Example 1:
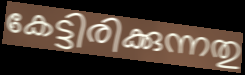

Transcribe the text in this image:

കേട്ടിരിക്കുന്നതു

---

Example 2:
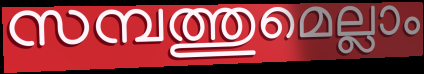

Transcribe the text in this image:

സമ്പത്തുമെല്ലാം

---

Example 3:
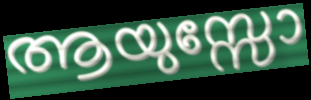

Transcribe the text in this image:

ആയുസ്സോ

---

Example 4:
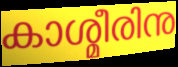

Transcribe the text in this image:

കാശ്മീരിനു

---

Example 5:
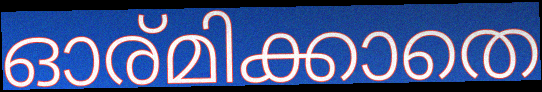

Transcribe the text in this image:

ഓര്മിക്കാതെ